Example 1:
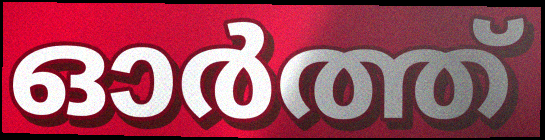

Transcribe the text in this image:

ഓർത്ത്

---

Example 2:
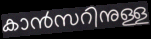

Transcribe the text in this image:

കാൻസറിനുള്ള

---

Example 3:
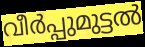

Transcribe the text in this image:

വീർപ്പുമുട്ടൽ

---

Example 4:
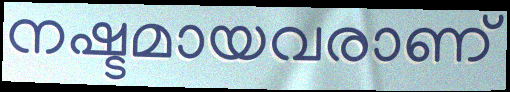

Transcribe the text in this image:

നഷ്ടമായവരാണ്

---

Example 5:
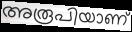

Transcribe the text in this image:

അരൂപിയാണ്